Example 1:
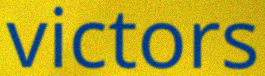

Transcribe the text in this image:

victors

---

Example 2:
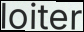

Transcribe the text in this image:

loiter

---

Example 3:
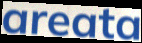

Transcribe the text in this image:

areata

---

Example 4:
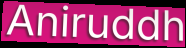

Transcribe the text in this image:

Aniruddh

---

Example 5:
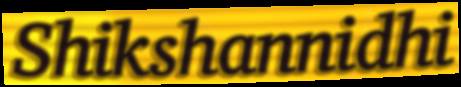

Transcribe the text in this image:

Shikshannidhi